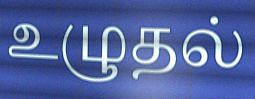
உழுதல்